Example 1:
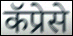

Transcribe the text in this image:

कॅप्रेसे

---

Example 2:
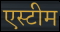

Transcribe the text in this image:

एस्टीम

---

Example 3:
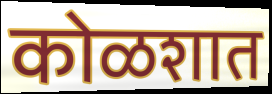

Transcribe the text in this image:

कोळशात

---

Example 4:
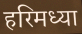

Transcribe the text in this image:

हरिमध्या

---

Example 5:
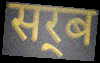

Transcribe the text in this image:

सर्ब